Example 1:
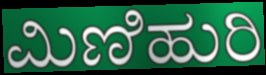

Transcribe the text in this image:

ಮಿಣಿಹುರಿ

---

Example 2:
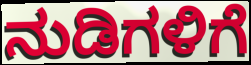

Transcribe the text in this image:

ನುಡಿಗಳಿಗೆ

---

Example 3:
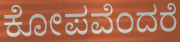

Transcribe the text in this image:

ಕೋಪವೆಂದರೆ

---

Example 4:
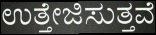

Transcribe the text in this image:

ಉತ್ತೇಜಿಸುತ್ತವೆ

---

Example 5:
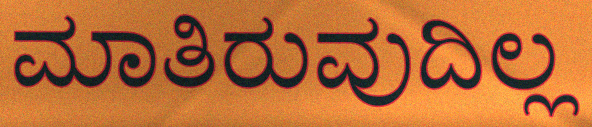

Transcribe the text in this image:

ಮಾತಿರುವುದಿಲ್ಲ